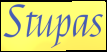
Stupas